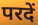
परदें